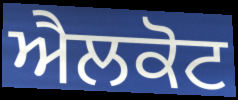
ਐਲਕੋਟ